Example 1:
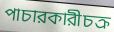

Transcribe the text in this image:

পাচারকারীচক্র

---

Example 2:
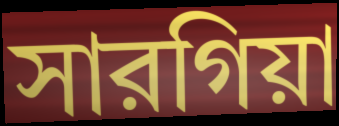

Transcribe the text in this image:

সারগিয়া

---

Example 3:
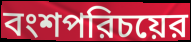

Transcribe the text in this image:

বংশপরিচয়ের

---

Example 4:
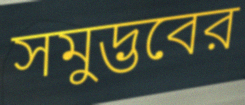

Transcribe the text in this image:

সমুদ্ভবের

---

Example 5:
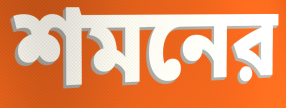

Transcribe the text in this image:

শমনের